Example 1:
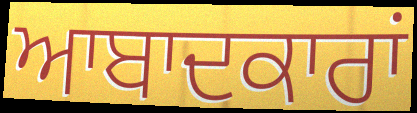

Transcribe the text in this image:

ਆਬਾਦਕਾਰਾਂ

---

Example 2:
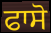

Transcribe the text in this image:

ਫਾਸੋ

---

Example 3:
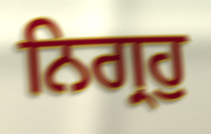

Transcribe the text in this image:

ਨਿਗ੍ਰਹੁ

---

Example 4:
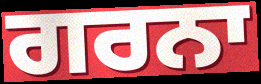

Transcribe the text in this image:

ਗਰਨਾ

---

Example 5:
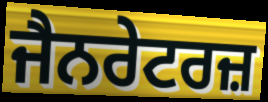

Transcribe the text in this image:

ਜੈਨਰੇਟਰਜ਼